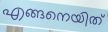
എങ്ങനെയിത്